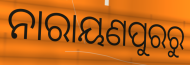
ନାରାୟଣପୁରରୁ